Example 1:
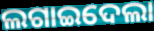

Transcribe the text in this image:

ଲଗାଇଦେଲା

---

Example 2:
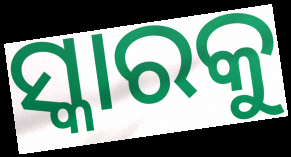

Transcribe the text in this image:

ସ୍କାରକୁ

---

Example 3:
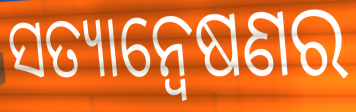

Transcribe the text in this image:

ସତ୍ୟାନ୍ୱେଷଣର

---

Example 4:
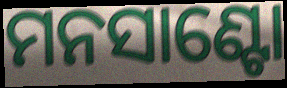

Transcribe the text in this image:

ମନସାଣ୍ଟୋ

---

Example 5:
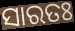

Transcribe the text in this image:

ସାରତଃ